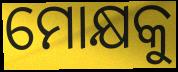
ମୋକ୍ଷକୁ